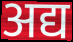
अद्य